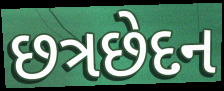
છત્રછેદન